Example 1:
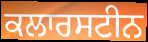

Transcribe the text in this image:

ਕਲਾਰਸਟੀਨ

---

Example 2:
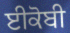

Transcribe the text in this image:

ਈਕੋਬੀ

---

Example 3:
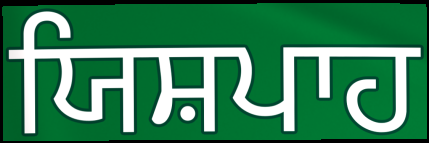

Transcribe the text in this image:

ਯਿਸ਼ਪਾਹ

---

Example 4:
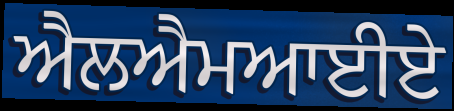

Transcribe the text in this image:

ਐਲਐਮਆਈਏ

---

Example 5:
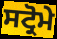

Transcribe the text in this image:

ਸਟ੍ਰੋਮੇ